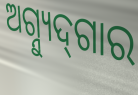
ଅଗ୍ନ୍ୟୁଦ୍‌ଗାର